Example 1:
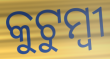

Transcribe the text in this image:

କୁଟୁମ୍ବୀ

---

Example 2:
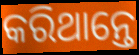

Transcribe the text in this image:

କରିଥାନ୍ତେ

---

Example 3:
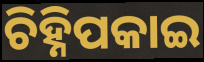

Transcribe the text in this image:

ଚିହ୍ନିପକାଇ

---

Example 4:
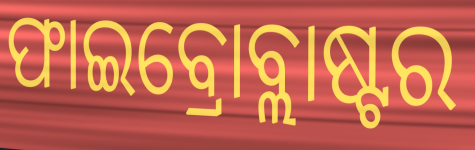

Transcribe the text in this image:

ଫାଇବ୍ରୋବ୍ଲାଷ୍ଟର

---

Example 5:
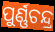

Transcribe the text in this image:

ପୁର୍ଣ୍ଣଚନ୍ଦ୍ର